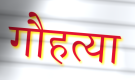
गौहत्या